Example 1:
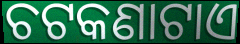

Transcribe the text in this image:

ଚଟକଣାଟାଏ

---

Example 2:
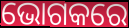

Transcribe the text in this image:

ଭୋଗକରେ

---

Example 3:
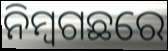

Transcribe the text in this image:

ନିମ୍ବଗଛରେ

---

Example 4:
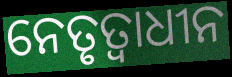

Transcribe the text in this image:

ନେତୃତ୍ୱାଧୀନ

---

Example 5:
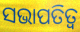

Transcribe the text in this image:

ସଭାପତିତ୍ବ